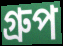
গ্ৰুপ